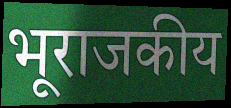
भूराजकीय